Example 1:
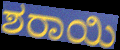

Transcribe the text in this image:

ಶರಾಯಿ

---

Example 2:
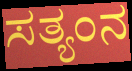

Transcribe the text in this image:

ಸತ್ಯಂನ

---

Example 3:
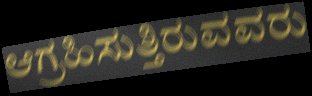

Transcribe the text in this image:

ಆಗ್ರಹಿಸುತ್ತಿರುವವರು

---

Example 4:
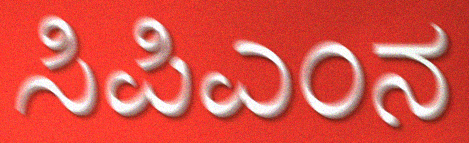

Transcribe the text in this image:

ಸಿಪಿಎಂನ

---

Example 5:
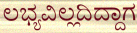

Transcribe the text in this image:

ಲಭ್ಯವಿಲ್ಲದಿದ್ದಾಗ